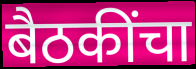
बैठकींचा